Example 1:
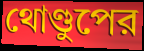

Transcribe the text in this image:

থোণ্ডুপের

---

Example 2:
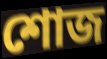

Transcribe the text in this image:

শোজ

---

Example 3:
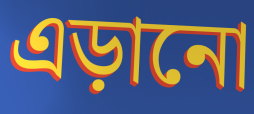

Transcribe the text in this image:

এড়ানো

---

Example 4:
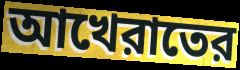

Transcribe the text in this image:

আখেরাতের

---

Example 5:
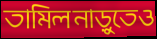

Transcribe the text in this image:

তামিলনাড়ুতেও